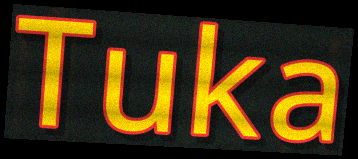
Tuka